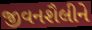
જીવનશૈલીને